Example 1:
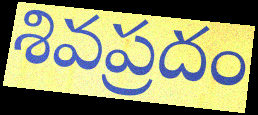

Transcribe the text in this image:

శివప్రదం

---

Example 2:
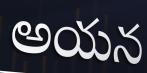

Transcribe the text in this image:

అయన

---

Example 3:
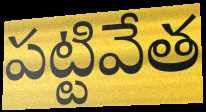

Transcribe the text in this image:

పట్టివేత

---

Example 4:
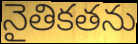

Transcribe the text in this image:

నైతికతను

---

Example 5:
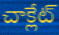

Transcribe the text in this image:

చాక్లేట్